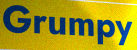
Grumpy